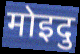
मोइदु